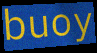
buoy